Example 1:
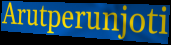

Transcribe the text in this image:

Arutperunjoti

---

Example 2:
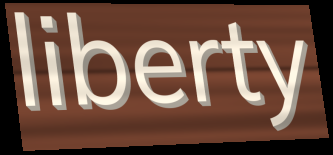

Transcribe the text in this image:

liberty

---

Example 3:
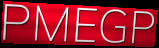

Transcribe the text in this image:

PMEGP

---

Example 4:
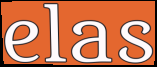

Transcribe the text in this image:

elas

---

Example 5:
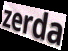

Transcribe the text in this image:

zerda